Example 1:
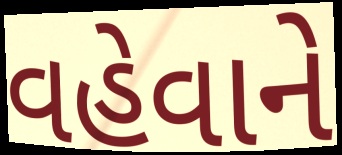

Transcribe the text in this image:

વહેવાને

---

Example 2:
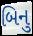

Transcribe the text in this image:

બિનુ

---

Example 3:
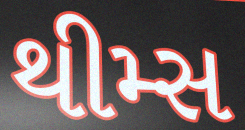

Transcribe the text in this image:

થીમ્સ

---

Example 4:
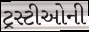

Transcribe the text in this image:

ટ્રસ્ટીઓની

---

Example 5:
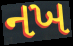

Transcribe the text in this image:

નખ